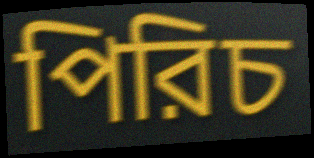
পিরিচ